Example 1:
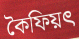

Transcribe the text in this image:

কৈফিয়ৎ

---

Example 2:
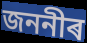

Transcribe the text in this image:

জননীৰ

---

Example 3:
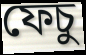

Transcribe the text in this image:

ফেচু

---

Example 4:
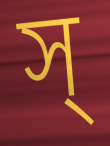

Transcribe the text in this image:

স্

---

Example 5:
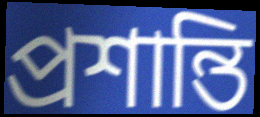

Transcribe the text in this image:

প্ৰশান্তি